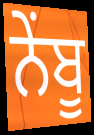
ਨੇਂਬੂ